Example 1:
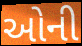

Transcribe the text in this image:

ઓની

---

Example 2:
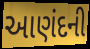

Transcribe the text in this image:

આણંદની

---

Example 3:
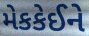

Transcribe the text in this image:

મેકકેઈને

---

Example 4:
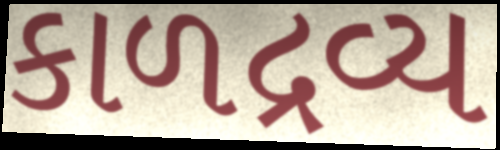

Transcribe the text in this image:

કાળદ્રવ્ય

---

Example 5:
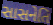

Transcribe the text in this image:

સાસનેતિ